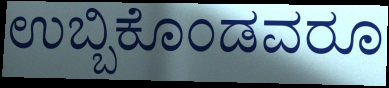
ಉಬ್ಬಿಕೊಂಡವರೂ